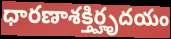
ధారణాశక్తిర్హృదయం